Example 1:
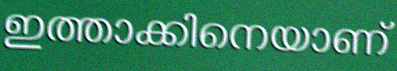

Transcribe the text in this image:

ഇത്താക്കിനെയാണ്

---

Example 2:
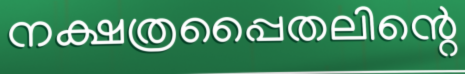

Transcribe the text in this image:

നക്ഷത്രപ്പൈതലിന്റെ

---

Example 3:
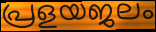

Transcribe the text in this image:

പ്രളയജലം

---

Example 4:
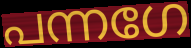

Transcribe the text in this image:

പന്നഗേ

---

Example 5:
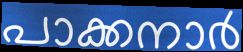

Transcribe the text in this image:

പാക്കനാർ